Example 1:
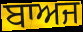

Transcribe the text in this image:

ਬਾਅਜ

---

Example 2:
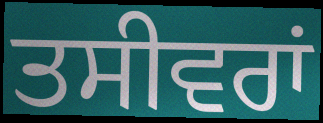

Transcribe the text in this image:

ਤਸੀਵਰਾਂ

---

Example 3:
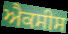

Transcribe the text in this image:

ਐਕਸੀਸ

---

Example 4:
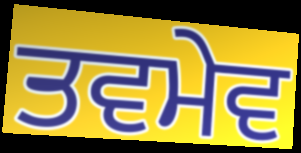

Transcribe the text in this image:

ਤਵਮੇਵ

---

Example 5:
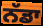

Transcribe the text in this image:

ਨੱਡਾ